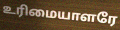
உரிமையாளரே